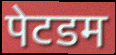
पेटडम